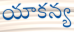
యాకన్య